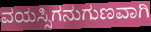
ವಯಸ್ಸಿಗನುಗುಣವಾಗಿ